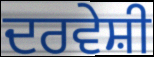
ਦਰਵੇਸ਼ੀ